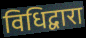
विधिद्वारा